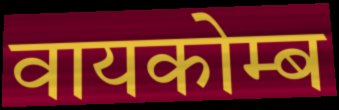
वायकोम्ब